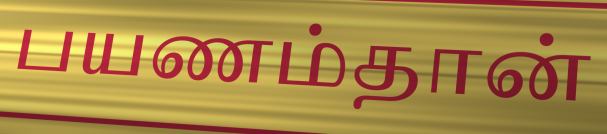
பயணம்தான்